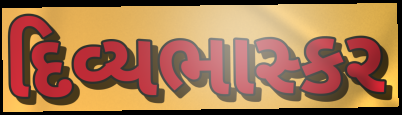
દિવ્યભાસ્કર